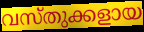
വസ്തുക്കളായ